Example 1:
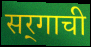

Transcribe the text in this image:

सर्गाची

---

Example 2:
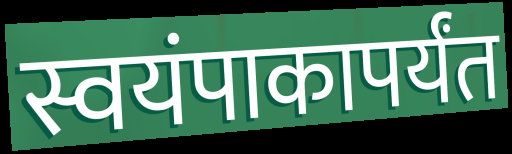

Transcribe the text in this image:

स्वयंपाकापर्यंत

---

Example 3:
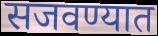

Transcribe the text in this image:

सजवण्यात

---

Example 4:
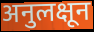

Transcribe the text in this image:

अनुलक्षून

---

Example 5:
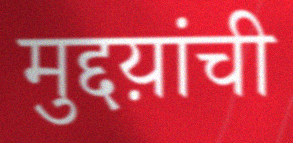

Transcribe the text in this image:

मुद्दय़ांची